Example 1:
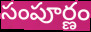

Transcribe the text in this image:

సంపూర్ణం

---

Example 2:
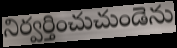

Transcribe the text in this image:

నిర్వర్తించుచుండెను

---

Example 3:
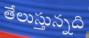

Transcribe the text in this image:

తేలుస్తున్నది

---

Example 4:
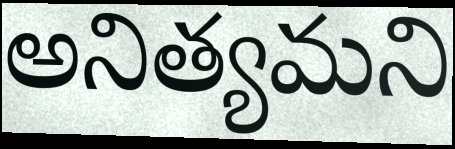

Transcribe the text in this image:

అనిత్యమని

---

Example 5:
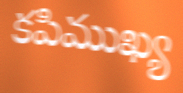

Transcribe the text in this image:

కపిముఖ్య